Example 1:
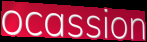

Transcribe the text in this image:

ocassion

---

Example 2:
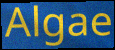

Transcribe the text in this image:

Algae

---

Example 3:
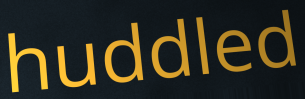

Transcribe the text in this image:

huddled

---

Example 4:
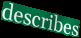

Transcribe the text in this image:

describes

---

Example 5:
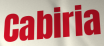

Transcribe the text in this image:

Cabiria